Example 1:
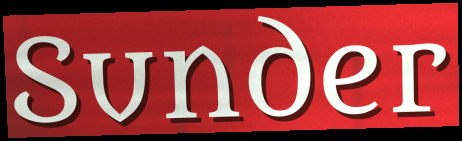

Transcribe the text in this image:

Sunder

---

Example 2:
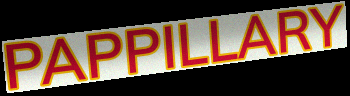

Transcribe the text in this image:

PAPPILLARY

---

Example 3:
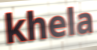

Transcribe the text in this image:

khela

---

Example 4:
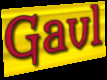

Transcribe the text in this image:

Gaul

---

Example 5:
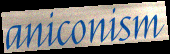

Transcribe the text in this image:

aniconism